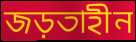
জড়তাহীন